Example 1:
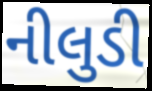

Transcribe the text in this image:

નીલુડી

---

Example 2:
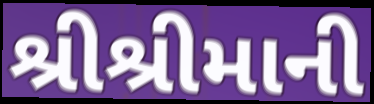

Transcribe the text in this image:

શ્રીશ્રીમાની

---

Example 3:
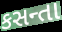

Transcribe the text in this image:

કસન્તા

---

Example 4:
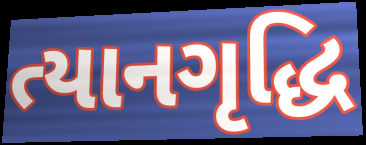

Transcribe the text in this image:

ત્યાનગૃદ્ધિ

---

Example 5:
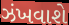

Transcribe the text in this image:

ઝંખવાશે